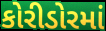
કોરીડોરમાં